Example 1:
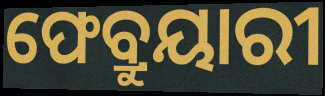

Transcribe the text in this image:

ଫେବ୍ରୁୟାରୀ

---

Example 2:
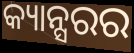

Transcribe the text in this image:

କ୍ୟାନ୍ସରର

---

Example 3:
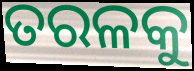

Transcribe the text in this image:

ତରଳକୁ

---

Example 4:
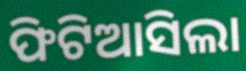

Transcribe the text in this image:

ଫିଟିଆସିଲା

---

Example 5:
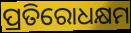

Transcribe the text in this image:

ପ୍ରତିରୋଧକ୍ଷମ